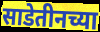
साडेतीनच्या